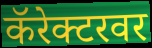
कॅरेक्टरवर